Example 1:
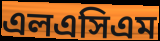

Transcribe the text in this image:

এলএসিএম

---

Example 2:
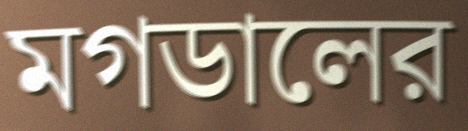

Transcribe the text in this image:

মগডালের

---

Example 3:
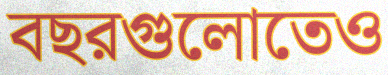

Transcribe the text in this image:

বছরগুলোতেও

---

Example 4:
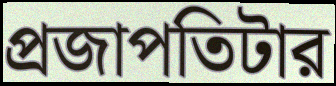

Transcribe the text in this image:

প্রজাপতিটার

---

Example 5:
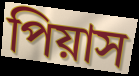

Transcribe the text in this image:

পিয়াস